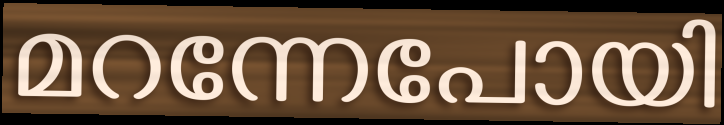
മറന്നേപോയി